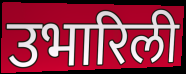
उभारिली